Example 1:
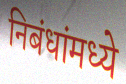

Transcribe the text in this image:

निबंधांमध्ये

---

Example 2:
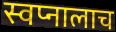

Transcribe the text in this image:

स्वप्नालाच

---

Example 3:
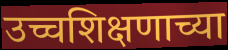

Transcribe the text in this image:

उच्चशिक्षणाच्या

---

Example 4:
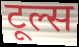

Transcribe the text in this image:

टूल्स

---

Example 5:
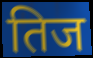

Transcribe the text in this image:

तिज